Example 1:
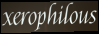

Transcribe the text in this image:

xerophilous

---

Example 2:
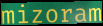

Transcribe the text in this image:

mizoram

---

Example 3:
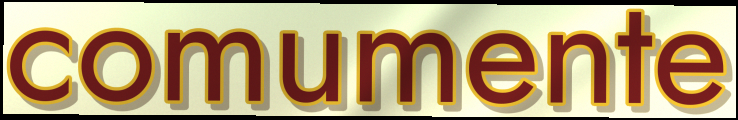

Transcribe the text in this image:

comumente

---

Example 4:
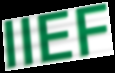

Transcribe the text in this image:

IIEF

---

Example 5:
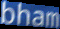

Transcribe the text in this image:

bham